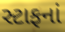
સ્ટાફનાં